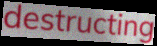
destructing